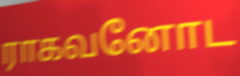
ராகவனோட